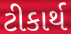
ટીકાર્થ